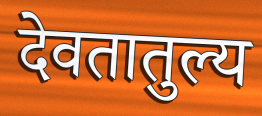
देवतातुल्य